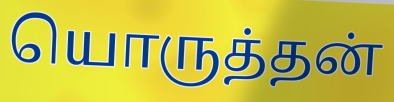
யொருத்தன்